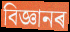
বিজ্ঞানৰ